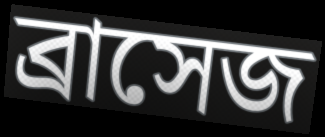
ব্রাসেজ